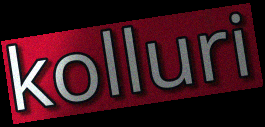
kolluri